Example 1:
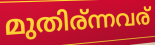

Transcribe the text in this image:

മുതിര്ന്നവര്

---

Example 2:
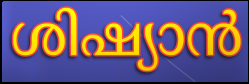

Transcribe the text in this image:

ശിഷ്യാൻ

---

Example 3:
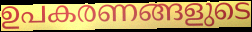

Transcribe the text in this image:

ഉപകരണങ്ങളുടെ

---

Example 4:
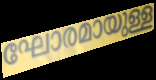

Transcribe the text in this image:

ഘോരമായുള്ള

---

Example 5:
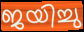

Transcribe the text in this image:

ജയിച്ചു